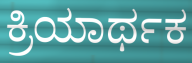
ಕ್ರಿಯಾರ್ಥಕ